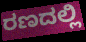
ರಣದಲ್ಲಿ